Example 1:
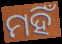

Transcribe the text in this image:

ମହିଁ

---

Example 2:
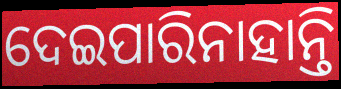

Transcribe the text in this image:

ଦେଇପାରିନାହାନ୍ତି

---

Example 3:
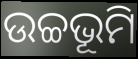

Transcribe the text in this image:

ଉଚ୍ଚଭୂମି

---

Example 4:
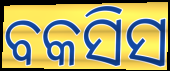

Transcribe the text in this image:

ବକସିସ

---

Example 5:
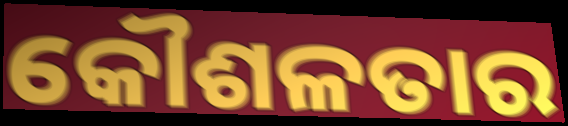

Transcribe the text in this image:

କୌଶଳତାର